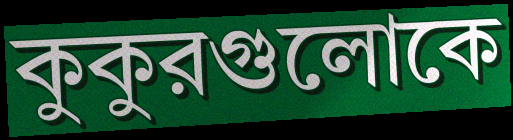
কুকুরগুলোকে